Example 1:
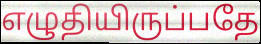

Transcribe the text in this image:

எழுதியிருப்பதே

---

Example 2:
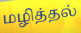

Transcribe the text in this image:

மழித்தல்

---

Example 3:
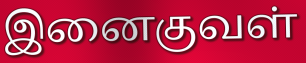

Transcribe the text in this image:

இனைகுவள்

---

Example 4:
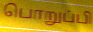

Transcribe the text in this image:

பொறுப்பி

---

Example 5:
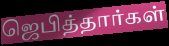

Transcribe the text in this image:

ஜெபித்தார்கள்